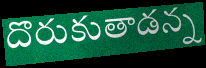
దొరుకుతాడన్న